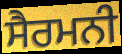
ਸੈਰਮਨੀ